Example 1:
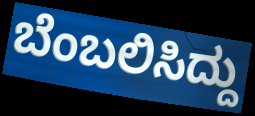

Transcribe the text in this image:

ಬೆಂಬಲಿಸಿದ್ದು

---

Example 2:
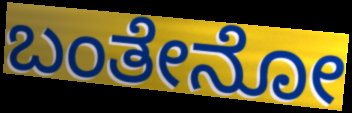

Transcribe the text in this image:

ಬಂತೇನೋ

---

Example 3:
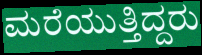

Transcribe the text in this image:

ಮರೆಯುತ್ತಿದ್ದರು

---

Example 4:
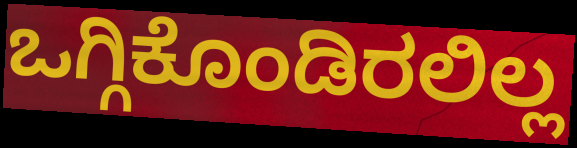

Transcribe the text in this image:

ಒಗ್ಗಿಕೊಂಡಿರಲಿಲ್ಲ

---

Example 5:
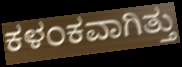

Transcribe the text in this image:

ಕಳಂಕವಾಗಿತ್ತು